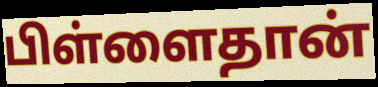
பிள்ளைதான்